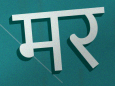
मर